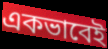
একভাবেই